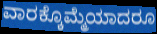
ವಾರಕ್ಕೊಮ್ಮೆಯಾದರೂ